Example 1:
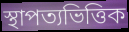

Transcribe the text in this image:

স্থাপত্যভিত্তিক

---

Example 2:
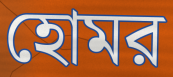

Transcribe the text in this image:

হোমর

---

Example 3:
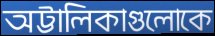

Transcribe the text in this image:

অট্টালিকাগুলোকে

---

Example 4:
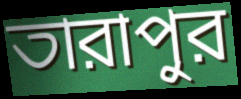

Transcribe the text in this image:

তারাপুর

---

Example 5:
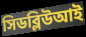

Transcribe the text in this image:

সিডব্লিউআই